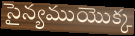
సైన్యముయొక్క